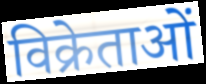
विक्रेताओं